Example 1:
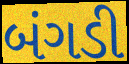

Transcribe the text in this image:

બંગડી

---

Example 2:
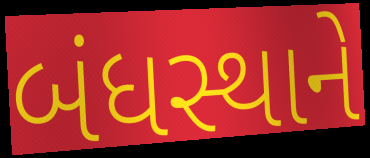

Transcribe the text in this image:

બંધસ્થાને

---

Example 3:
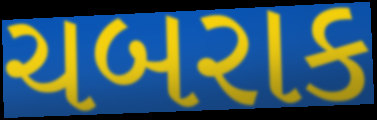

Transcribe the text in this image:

ચબરાક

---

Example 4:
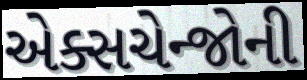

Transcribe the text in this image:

એક્સચેન્જોની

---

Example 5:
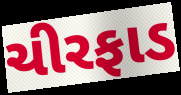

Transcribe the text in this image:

ચીરફાડ